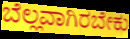
ಬೆಲ್ಲವಾಗಿರಬೇಕು